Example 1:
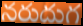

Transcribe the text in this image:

నరుదుగ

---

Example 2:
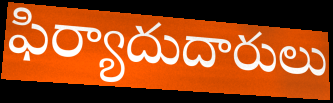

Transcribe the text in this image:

ఫిర్యాదుదారులు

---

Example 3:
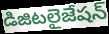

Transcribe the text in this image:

డిజిటలైజేషన్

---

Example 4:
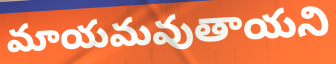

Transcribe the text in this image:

మాయమవుతాయని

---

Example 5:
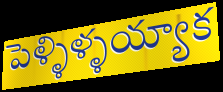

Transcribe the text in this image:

పెళ్ళిళ్ళయ్యాక